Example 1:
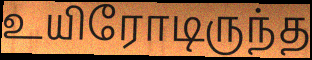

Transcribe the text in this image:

உயிரோடிருந்த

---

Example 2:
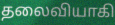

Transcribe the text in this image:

தலைவியாகி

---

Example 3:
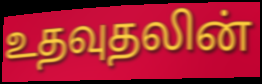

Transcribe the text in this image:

உதவுதலின்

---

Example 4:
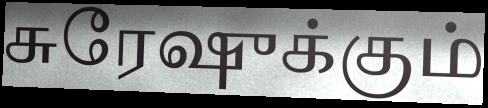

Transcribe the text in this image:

சுரேஷுக்கும்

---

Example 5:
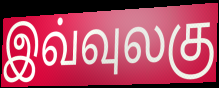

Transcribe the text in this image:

இவ்வுலகு